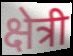
क्षेत्री